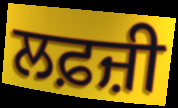
ਲਫ਼ਜ਼ੀ